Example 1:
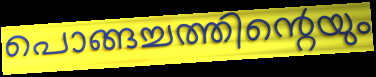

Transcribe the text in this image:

പൊങ്ങച്ചത്തിന്റെയും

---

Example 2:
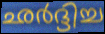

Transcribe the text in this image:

ഛർദ്ദിച്ച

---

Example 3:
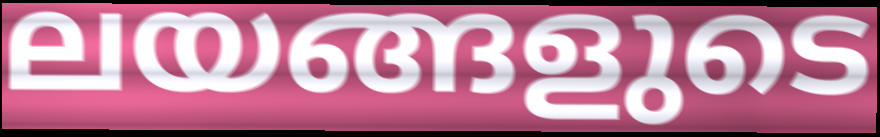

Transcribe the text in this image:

ലയങ്ങളുടെ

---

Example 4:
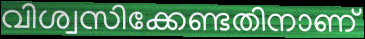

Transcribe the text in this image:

വിശ്വസിക്കേണ്ടതിനാണ്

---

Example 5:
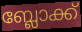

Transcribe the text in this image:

ബ്ലോക്ക്